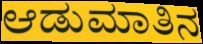
ಆಡುಮಾತಿನ